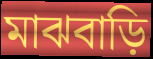
মাঝবাড়ি